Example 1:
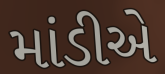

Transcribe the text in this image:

માંડીએ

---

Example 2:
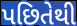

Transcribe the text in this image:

પછિતેથી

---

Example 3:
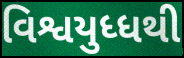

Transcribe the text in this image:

વિશ્વયુધ્ધથી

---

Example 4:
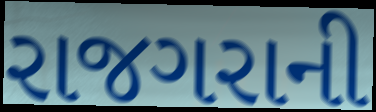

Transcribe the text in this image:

રાજગરાની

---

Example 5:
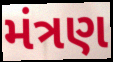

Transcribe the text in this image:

મંત્રણ